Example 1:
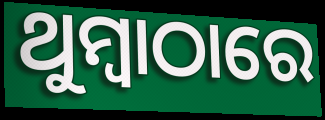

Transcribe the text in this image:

ଥୁମ୍ବାଠାରେ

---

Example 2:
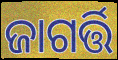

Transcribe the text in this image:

ଜାଗର୍ତ୍ତି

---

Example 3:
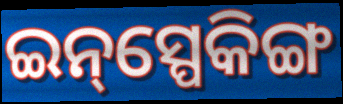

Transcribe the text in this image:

ଇନ୍‌ସ୍ପେକିଙ୍ଗ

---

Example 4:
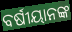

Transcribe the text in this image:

ବର୍ଷୀୟାନଙ୍କ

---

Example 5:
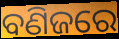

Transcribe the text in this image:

ବଣିଜରେ